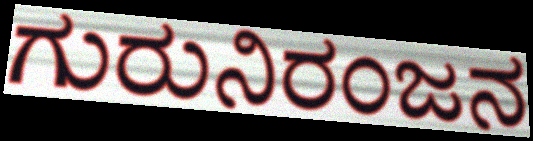
ಗುರುನಿರಂಜನ